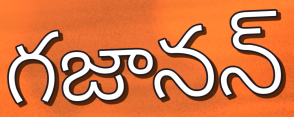
గజానన్